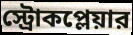
স্ট্রোকপ্লেয়ার